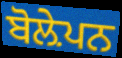
ਬੋਲ਼ੇਪਨ